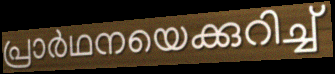
പ്രാർഥനയെക്കുറിച്ച്